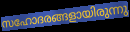
സഹോദരങ്ങളായിരുന്നു